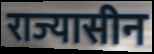
राज्यासीन